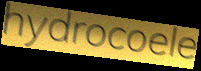
hydrocoele